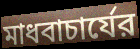
মাধবাচার্যের